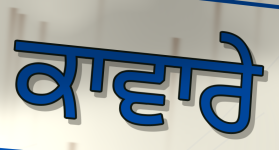
ਕਾਵਾਰੇ